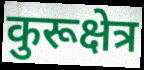
कुरूक्षेत्र